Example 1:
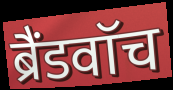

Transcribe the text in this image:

ब्रैंडवॉच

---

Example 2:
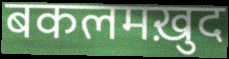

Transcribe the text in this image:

बकलमख़ुद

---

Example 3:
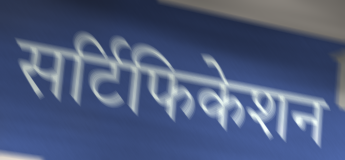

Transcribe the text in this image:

सर्टिफिकेशन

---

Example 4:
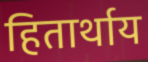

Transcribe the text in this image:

हितार्थाय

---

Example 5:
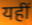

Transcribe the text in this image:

यहीं